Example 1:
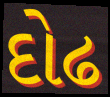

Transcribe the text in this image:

દોઢ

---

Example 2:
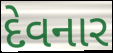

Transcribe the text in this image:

દેવનાર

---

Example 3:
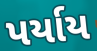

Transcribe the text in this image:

પર્યાય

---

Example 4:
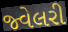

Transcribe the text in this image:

જ્વેલરી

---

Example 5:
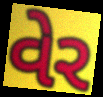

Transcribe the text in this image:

વેર